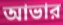
আভার